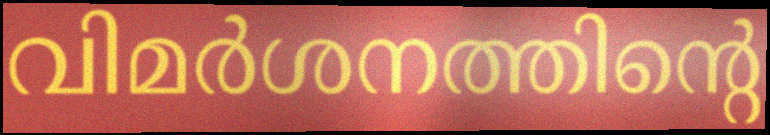
വിമർശനത്തിന്റെ